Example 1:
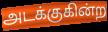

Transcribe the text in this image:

அடக்குகின்ற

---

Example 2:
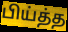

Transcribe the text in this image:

பிய்த்த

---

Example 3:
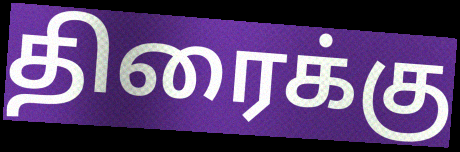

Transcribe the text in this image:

திரைக்கு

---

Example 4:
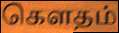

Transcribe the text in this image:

கௌதம்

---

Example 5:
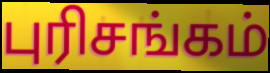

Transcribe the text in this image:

புரிசங்கம்